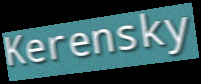
Kerensky